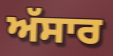
ਅੱਸਾਰ